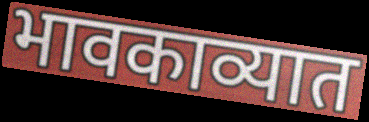
भावकाव्यात